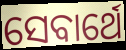
ସେବାର୍ଥେ